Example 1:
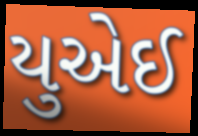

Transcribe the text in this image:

યુએઈ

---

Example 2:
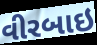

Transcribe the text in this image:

વીરબાઇ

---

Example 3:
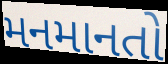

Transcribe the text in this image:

મનમાનતો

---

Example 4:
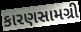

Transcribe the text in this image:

કારણસામગ્રી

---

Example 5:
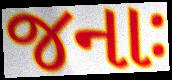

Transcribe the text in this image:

જનાઃ